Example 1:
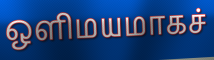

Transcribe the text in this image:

ஒளிமயமாகச்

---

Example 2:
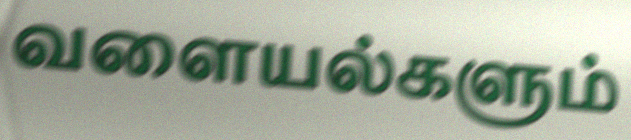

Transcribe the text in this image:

வளையல்களும்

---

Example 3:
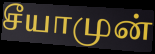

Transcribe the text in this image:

சீயாமுன்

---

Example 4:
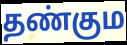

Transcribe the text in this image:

தண்கும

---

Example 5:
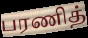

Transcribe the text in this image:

பரணித்